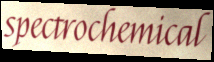
spectrochemical